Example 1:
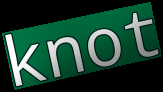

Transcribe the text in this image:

knot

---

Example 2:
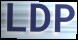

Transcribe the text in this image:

LDP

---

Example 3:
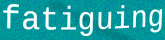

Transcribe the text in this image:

fatiguing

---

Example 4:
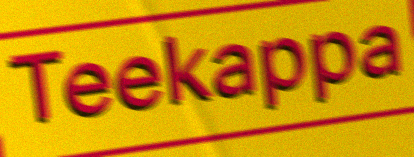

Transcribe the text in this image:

Teekappa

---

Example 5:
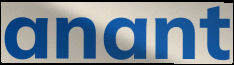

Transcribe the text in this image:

anant